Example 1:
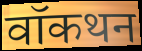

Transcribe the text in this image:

वॉकथन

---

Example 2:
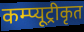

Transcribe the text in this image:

कम्प्यूट्रीकृत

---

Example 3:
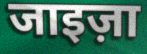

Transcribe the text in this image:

जाइज़ा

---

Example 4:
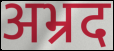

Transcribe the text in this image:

अभ्रद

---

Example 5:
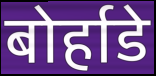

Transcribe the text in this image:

बोर्हाडे